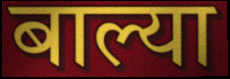
बाल्या